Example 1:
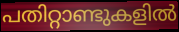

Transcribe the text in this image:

പതിറ്റാണ്ടുകളിൽ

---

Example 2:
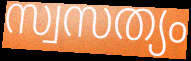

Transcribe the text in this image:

സ്വസത്യം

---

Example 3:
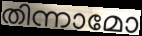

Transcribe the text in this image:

തിന്നാമോ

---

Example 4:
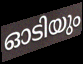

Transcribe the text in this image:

ഓടിയും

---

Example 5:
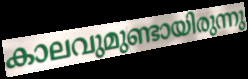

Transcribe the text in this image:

കാലവുമുണ്ടായിരുന്നു